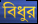
বিধুর